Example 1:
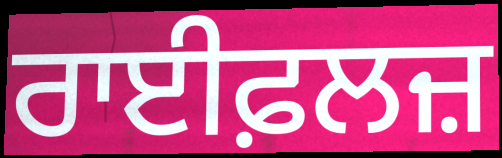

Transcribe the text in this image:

ਰਾਈਫ਼ਲਜ਼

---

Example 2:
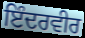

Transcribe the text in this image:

ਇੰਦਰਵੀਰ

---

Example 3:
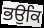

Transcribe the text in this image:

ਭਉਕਿ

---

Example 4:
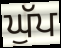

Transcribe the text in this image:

ਘੁੱਪ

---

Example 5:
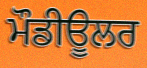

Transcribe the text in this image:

ਮੌਡੀਊਲਰ